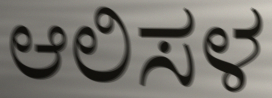
ಆಲಿಸಳ